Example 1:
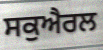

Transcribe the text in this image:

ਸਕੁਐਰਲ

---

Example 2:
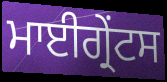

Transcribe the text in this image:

ਮਾਈਗ੍ਰੇਂਟਸ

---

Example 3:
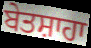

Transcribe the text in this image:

ਬੇਤਸ਼ਾਹਾ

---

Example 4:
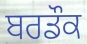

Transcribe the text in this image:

ਬਰਡੌਕ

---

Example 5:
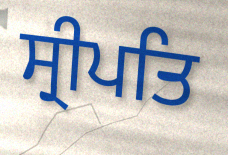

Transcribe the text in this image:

ਸ੍ਰੀਪਤਿ